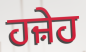
ਹਜ਼ੇਹ